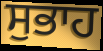
ਸੁਭਾਹ